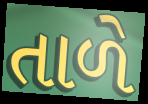
તાળે